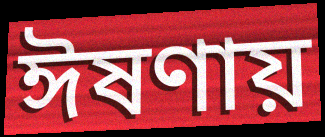
ঈষণায়